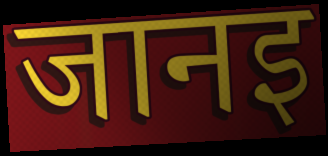
जानइ